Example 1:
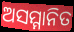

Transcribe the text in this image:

ଅସମ୍ମାନିତ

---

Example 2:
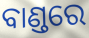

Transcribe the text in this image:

ବାଣ୍ଡରେ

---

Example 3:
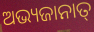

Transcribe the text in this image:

ଅଭ୍ୟଜାନାତ୍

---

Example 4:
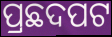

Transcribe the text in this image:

ପ୍ରଛଦପଟ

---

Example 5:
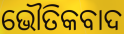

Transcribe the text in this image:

ଭୌତିକବାଦ